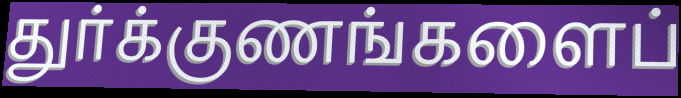
துர்க்குணங்களைப்